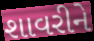
શાવરીને